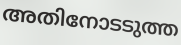
അതിനോടടുത്ത